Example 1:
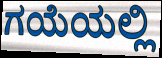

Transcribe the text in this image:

ಗಯೆಯಲ್ಲಿ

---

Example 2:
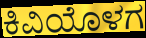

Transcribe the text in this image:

ಕಿವಿಯೊಳಗ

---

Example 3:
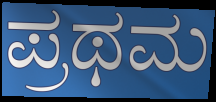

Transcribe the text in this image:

ಪ್ರಥಮ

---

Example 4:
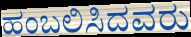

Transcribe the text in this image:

ಹಂಬಲಿಸಿದವರು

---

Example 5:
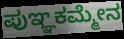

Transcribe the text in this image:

ಪುಞ್ಞಕಮ್ಮೇನ